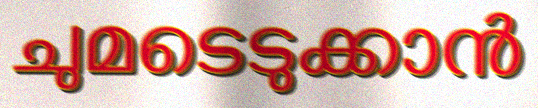
ചുമടെടുക്കാൻ